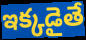
ఇక్కడైతే